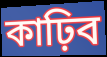
কাঢ়িব